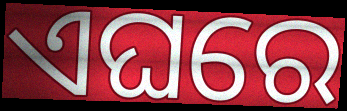
ଏଘରେ